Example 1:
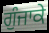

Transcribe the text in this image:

ਗੁੰਜਾਕੇ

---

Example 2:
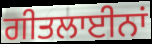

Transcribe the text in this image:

ਗੀਤਲਾਈਨਾਂ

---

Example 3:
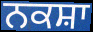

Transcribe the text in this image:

ਨਕਸ਼ਾ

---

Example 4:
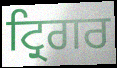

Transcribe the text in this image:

ਟ੍ਰਿਗਰ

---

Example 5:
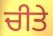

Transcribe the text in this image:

ਚੀਤੇ